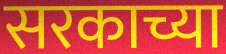
सरकाच्या